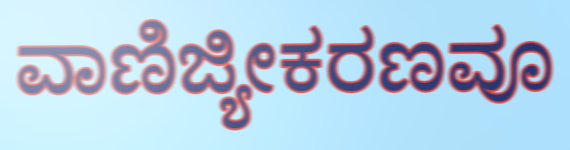
ವಾಣಿಜ್ಯೀಕರಣವೂ